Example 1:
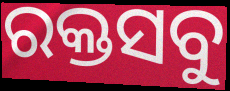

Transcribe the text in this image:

ରକ୍ତସବୁ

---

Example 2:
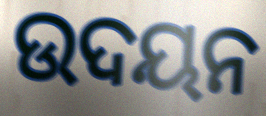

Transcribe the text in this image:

ଉଦୟନ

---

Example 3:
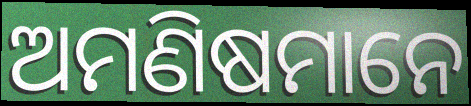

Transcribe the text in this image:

ଅମଣିଷମାନେ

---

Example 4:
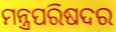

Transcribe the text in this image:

ମନ୍ତ୍ରପରିଷଦର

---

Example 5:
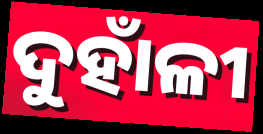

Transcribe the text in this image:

ଦୁହାଁଳୀ